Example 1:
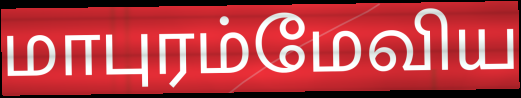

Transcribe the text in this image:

மாபுரம்மேவிய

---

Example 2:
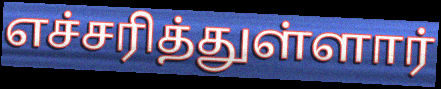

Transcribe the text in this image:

எச்சரித்துள்ளார்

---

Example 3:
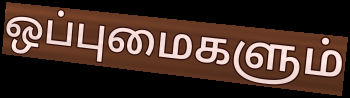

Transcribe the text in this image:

ஒப்புமைகளும்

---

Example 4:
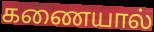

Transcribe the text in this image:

கணையால்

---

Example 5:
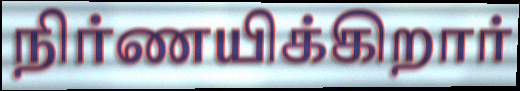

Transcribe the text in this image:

நிர்ணயிக்கிறார்